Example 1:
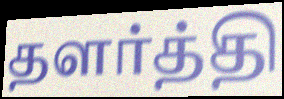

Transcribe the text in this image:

தளர்த்தி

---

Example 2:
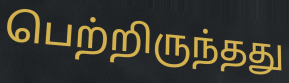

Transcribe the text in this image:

பெற்றிருந்தது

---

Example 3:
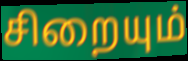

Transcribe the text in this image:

சிறையும்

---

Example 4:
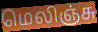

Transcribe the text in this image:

மெலிஞ்சு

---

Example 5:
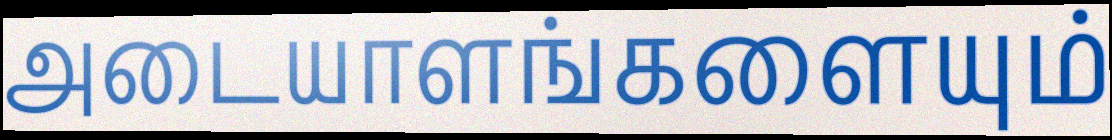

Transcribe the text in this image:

அடையாளங்களையும்